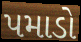
પમાડો